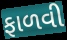
ફાળવી